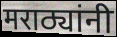
मराठ्यांनी